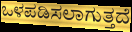
ಒಳಪಡಿಸಲಾಗುತ್ತದೆ